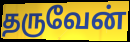
தருவேன்